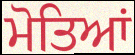
ਮੋਤਿਆਂ